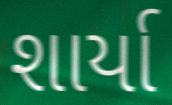
શાર્યા